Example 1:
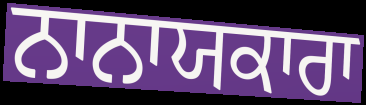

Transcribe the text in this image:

ਨਾਨਾਯਕਾਰਾ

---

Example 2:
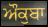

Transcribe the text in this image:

ਔਕੁਬਾ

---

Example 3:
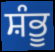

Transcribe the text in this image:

ਸ਼ੰਭੂ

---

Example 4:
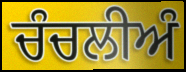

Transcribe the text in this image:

ਚੰਚਲੀਅੰ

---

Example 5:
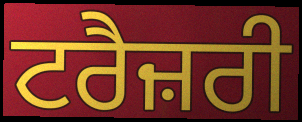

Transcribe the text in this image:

ਟਰੈਜ਼ਰੀ